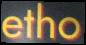
etho